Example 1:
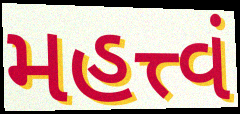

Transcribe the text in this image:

મહત્ત્વં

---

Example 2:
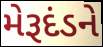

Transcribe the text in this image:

મેરૂદંડને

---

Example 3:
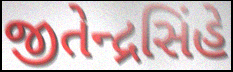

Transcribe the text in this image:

જીતેન્દ્રસિંહે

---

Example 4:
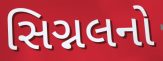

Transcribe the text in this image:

સિગ્નલનો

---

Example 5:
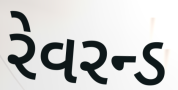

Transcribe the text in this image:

રેવરન્ડ